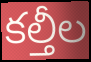
కల్తీల